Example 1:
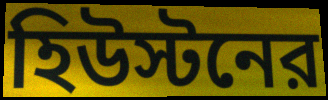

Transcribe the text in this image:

হিউস্টনের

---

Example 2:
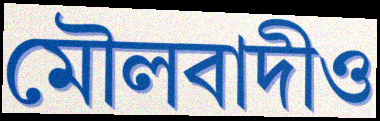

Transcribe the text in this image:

মৌলবাদীও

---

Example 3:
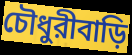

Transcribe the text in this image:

চৌধুরীবাড়ি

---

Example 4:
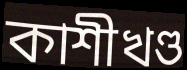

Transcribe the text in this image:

কাশীখণ্ড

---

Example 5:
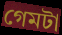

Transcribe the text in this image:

গেমটা